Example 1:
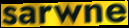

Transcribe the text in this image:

sarwne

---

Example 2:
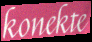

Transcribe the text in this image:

konekte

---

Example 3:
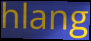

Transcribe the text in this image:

hlang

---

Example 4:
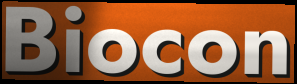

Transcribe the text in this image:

Biocon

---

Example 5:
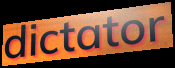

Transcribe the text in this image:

dictator